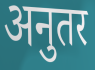
अनुतर